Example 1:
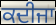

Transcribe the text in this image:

ਕਦੀਜਾ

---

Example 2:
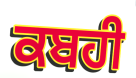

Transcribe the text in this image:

ਕਬਹੀ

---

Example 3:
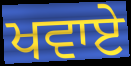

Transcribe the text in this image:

ਖਵਾਏ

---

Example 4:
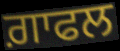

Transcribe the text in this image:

ਗ਼ਾਫਲ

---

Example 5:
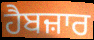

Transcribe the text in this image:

ਹੈਬਜ਼ਾਰ